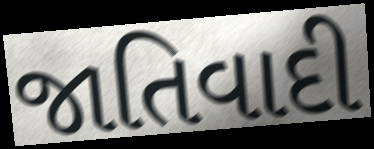
જાતિવાદી